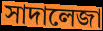
সাদালেজা